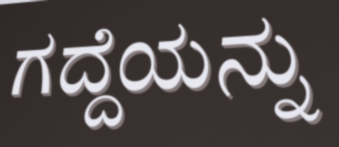
ಗದ್ದೆಯನ್ನು